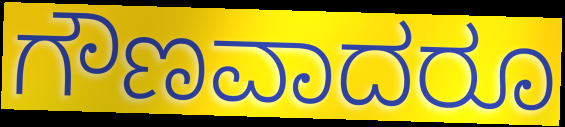
ಗೌಣವಾದರೂ